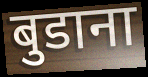
बुडाना